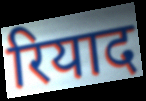
रियाद